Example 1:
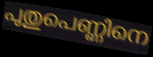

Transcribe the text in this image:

പുതുപെണ്ണിനെ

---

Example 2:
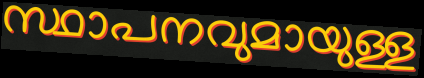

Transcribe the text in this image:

സ്ഥാപനവുമായുള്ള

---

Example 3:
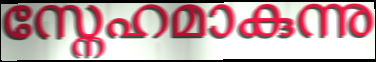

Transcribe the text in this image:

സ്നേഹമാകുന്നു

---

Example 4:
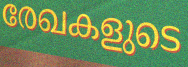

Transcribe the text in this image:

രേഖകളുടെ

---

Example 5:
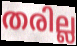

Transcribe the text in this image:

തരില്ല